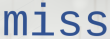
miss